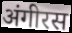
अंगीरस